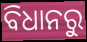
ବିଧାନରୁ